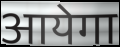
आयेगा